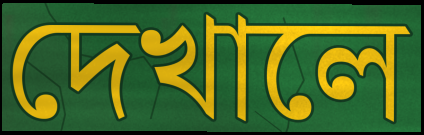
দেখালে